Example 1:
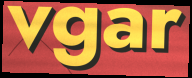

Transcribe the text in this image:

vgar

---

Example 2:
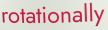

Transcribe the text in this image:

rotationally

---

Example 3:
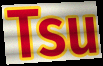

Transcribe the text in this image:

Tsu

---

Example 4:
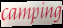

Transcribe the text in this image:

camping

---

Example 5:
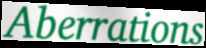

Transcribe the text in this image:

Aberrations